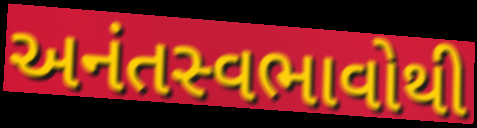
અનંતસ્વભાવોથી